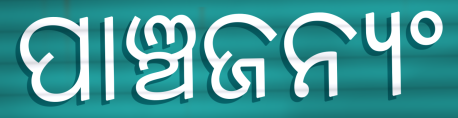
ପାଞ୍ଚଜନ୍ୟଂ